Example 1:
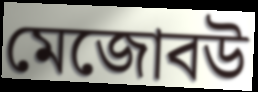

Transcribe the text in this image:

মেজোবউ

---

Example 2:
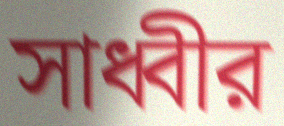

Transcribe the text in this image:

সাধ্বীর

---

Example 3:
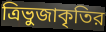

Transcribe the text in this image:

ত্রিভুজাকৃতির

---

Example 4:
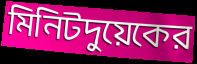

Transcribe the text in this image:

মিনিটদুয়েকের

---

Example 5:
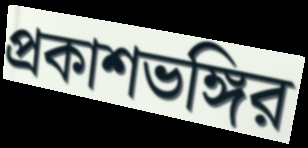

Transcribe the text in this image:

প্রকাশভঙ্গির